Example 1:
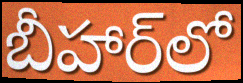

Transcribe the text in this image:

బీహార్‌లో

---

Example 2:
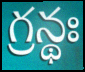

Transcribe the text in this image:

గ్రన్థః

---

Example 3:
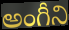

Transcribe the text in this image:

అంగీని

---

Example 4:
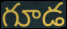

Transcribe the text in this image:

గూడ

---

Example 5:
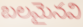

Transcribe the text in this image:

బలమైనవి